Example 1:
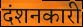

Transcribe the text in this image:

दंशनकारी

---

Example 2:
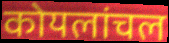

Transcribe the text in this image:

कोयलांचल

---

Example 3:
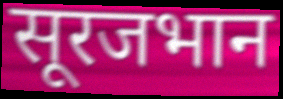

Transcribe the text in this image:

सूरजभान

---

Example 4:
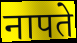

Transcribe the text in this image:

नापते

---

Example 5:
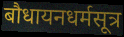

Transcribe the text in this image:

बौधायनधर्मसूत्र